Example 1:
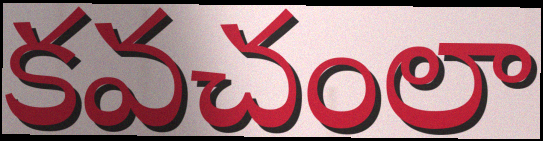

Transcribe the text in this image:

కవచంలా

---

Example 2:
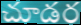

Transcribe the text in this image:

చూడర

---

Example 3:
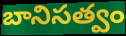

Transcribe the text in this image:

బానిసత్వం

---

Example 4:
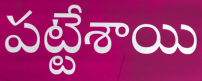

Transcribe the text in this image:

పట్టేశాయి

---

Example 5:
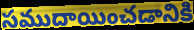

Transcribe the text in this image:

సముదాయించడానికి